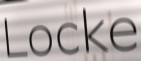
Locke